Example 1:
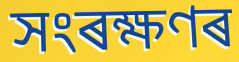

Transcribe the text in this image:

সংৰক্ষণৰ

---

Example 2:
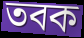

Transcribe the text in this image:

তবক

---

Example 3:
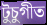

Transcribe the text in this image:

টুচুগীত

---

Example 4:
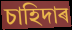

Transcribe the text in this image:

চাহিদাৰ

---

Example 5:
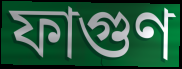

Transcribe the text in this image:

ফাগুণ